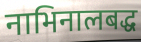
नाभिनालबद्ध